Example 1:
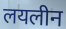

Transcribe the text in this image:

लयलीन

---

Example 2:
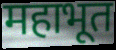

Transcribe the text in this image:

महाभूत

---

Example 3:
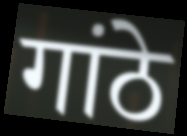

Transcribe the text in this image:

गांठे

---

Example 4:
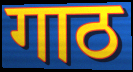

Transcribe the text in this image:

गाठ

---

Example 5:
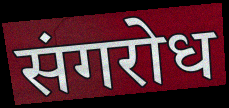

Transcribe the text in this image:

संगरोध